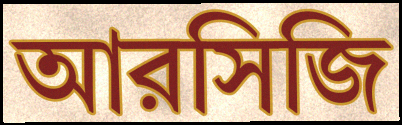
আরসিজি